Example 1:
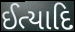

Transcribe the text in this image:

ઈત્યાદિ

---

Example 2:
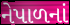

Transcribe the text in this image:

નેપાળનાં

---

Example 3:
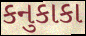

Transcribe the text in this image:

કનુકાકા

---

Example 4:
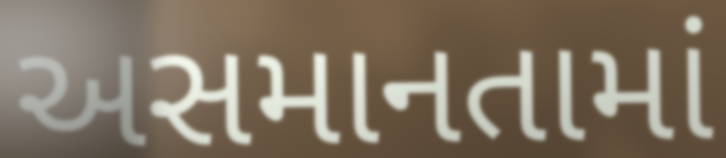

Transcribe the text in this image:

અસમાનતામાં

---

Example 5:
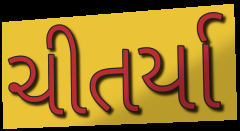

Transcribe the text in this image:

ચીતર્યા